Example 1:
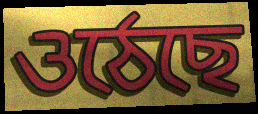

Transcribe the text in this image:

ওঠেছে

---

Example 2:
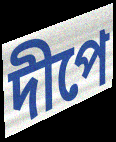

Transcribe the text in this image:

দীপে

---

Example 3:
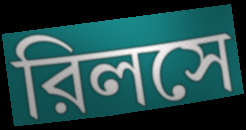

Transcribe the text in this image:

রিলসে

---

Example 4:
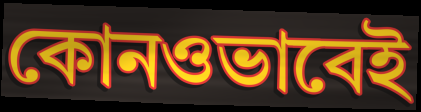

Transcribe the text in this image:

কোনওভাবেই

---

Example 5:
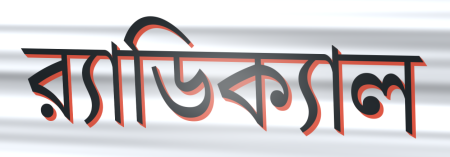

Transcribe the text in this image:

র‍্যাডিক্যাল